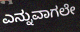
ಎನ್ನುವಾಗಲೇ